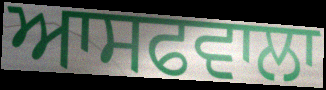
ਆਸਫਵਾਲਾ